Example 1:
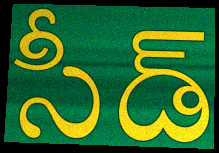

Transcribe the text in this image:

సీడ్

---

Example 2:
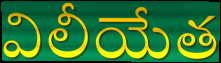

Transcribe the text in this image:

విలీయేత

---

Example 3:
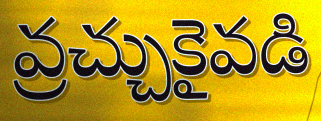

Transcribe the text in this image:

వ్రచ్చుకైవడి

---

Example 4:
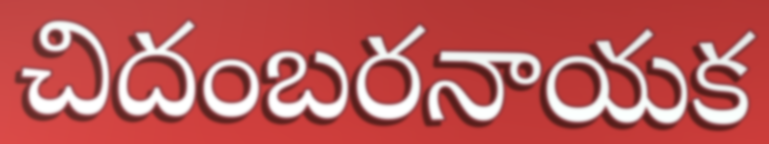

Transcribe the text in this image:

చిదంబరనాయక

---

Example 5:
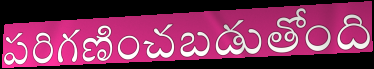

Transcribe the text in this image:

పరిగణించబడుతోంది